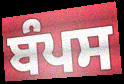
ਬੰਪਸ